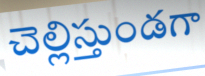
చెల్లిస్తుండగా